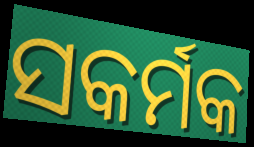
ସକର୍ମକ